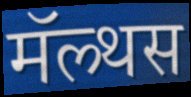
मॅल्थस